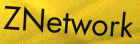
ZNetwork